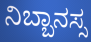
ನಿಬ್ಬಾನಸ್ಸ